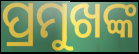
ପ୍ରମୁଖଙ୍କ